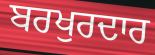
ਬਰਖੁਰਦਾਰ